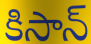
కిసాన్